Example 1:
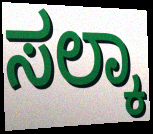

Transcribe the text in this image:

ಸಲ್ಕಾ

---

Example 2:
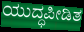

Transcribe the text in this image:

ಯುದ್ಧಪೀಡಿತ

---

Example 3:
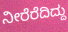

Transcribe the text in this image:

ನೀರೆರೆದಿದ್ದು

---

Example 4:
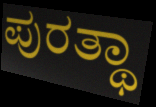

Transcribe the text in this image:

ಪುರತ್ಥಾ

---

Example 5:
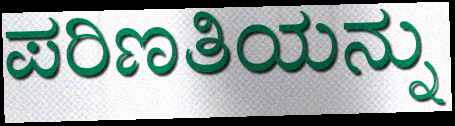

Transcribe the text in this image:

ಪರಿಣತಿಯನ್ನು